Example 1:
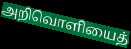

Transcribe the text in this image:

அறிவொளியைத்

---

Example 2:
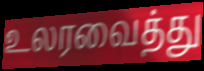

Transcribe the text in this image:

உலரவைத்து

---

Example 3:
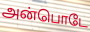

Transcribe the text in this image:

அன்பொடே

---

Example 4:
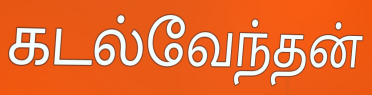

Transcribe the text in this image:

கடல்வேந்தன்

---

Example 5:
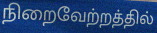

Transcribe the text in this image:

நிறைவேற்றத்தில்